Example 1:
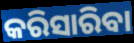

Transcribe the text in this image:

କରିସାରିବା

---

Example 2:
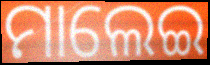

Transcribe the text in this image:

ମାଲେଇ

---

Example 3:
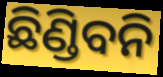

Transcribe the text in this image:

ଛିଣ୍ଡିବନି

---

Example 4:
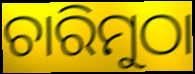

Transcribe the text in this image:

ଚାରିମୁଠା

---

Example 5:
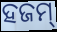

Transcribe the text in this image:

ହଜମ୍